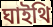
ঘাইথি